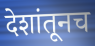
देशांतूनच